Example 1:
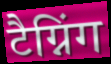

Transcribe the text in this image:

टैग्निंग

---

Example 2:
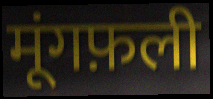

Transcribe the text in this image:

मूंगफ़ली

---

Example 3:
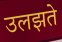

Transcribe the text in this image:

उलझते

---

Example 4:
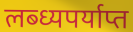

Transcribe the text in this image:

लब्ध्यपर्याप्त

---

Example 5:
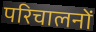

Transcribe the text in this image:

परिचालनों